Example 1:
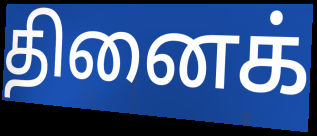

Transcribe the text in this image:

தினைக்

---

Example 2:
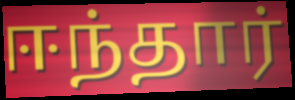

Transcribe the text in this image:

ஈந்தார்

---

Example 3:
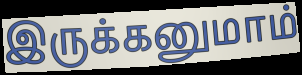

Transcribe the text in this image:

இருக்கனுமாம்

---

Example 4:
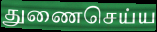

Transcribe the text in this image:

துணைசெய்ய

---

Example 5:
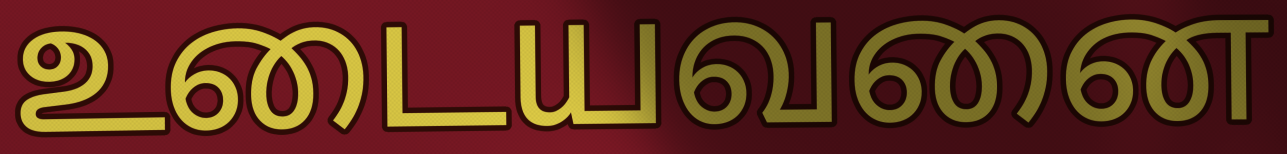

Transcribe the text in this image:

உடையவனை